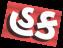
હક